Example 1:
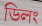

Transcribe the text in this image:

ডিলং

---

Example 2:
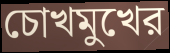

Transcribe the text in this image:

চোখমুখের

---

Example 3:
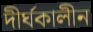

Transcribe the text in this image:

দীর্ঘকালীন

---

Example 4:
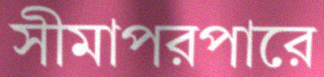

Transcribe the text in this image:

সীমাপরপারে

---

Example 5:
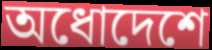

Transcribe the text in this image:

অধোদেশে